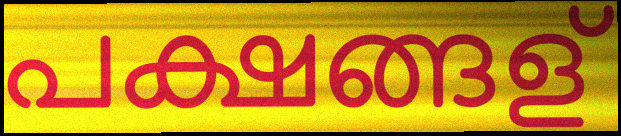
പക്ഷങ്ങള്